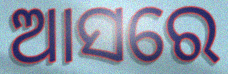
ଆସରେ